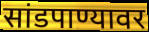
सांडपाण्यावर